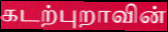
கடற்புறாவின்